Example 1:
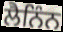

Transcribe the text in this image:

ਲੈਨਿੰਨ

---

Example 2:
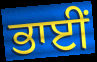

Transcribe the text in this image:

ਭਾਈੰ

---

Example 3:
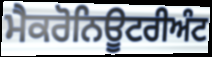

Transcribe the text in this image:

ਮੈਕਰੋਨਿਊਟਰੀਅੰਟ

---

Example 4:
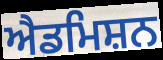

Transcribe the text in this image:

ਐਡਮਿਸ਼ਨ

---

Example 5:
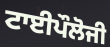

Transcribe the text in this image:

ਟਾਈਪੌਲੋਜੀ